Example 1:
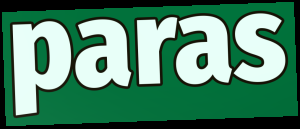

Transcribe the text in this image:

paras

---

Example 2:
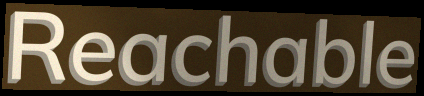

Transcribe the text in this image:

Reachable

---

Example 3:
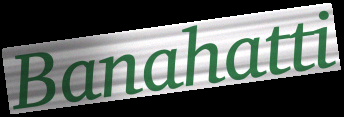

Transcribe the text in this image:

Banahatti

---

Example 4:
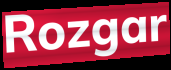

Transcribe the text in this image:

Rozgar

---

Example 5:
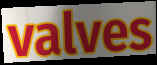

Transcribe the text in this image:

valves